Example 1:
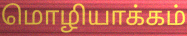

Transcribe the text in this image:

மொழியாக்கம்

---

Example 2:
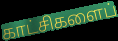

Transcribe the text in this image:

காட்சிகளைப்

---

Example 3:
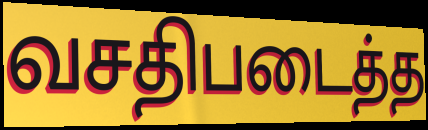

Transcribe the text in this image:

வசதிபடைத்த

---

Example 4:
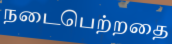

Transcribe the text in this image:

நடைபெற்றதை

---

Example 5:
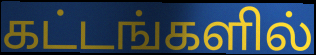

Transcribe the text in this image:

கட்டங்களில்